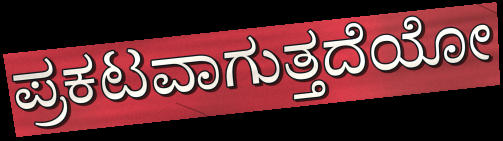
ಪ್ರಕಟವಾಗುತ್ತದೆಯೋ